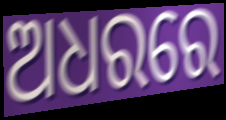
ଅଧରରେ